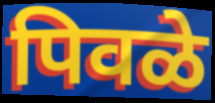
पिवळे